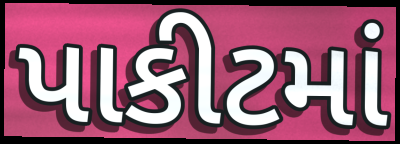
પાકીટમાં